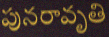
పునరావృతి